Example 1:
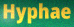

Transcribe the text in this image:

Hyphae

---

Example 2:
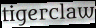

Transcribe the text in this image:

tigerclaw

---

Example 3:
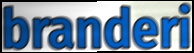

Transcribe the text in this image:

branderi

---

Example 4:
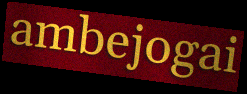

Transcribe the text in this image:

ambejogai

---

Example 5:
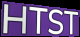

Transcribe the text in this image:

HTST